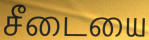
சீடையை